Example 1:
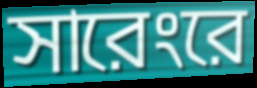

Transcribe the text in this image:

সারেংরে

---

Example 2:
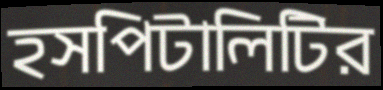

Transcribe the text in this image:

হসপিটালিটির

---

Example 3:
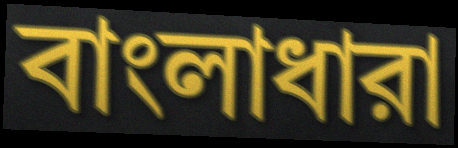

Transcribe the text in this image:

বাংলাধারা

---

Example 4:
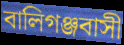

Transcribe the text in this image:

বালিগঞ্জবাসী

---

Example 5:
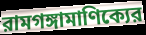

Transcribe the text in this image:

রামগঙ্গামাণিক্যের